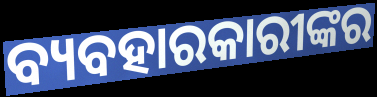
ବ୍ୟବହାରକାରୀଙ୍କର